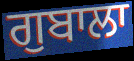
ਗੁਬਾਲਾ